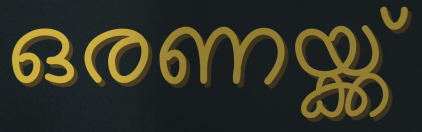
ഒരണയ്ക്ക്